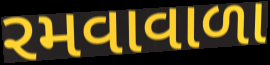
રમવાવાળા